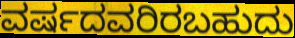
ವರ್ಷದವರಿರಬಹುದು